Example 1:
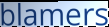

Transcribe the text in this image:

blamers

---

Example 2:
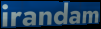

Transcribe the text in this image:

irandam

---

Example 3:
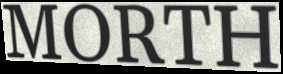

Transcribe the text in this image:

MORTH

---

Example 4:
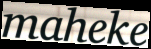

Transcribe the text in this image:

maheke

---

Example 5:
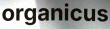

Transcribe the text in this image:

organicus